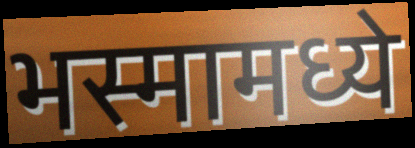
भस्मामध्ये